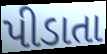
પીડાતા